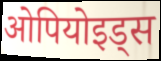
ओपियोइड्स